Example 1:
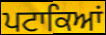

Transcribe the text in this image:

ਪਟਾਕਿਆਂ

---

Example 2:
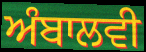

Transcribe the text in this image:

ਅੰਬਾਲਵੀ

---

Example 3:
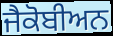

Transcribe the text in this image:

ਜੈਕੋਬੀਅਨ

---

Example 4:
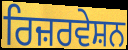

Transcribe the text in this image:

ਰਿਜ਼ਰਵੇਸ਼ਨ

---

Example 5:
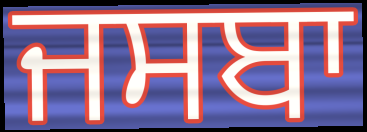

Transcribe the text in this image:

ਜਸਬਾ